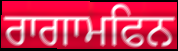
ਰਾਗਾਮਫਿਨ